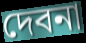
দেবনা